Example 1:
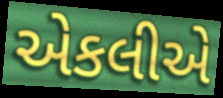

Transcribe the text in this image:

એકલીએ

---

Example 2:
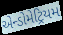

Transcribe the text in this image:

એન્ડોમેટ્રિયમ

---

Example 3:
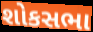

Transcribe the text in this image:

શોકસભા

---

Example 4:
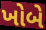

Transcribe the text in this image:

ખોબે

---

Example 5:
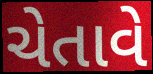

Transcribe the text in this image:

ચેતાવે